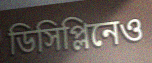
ডিসিপ্লিনেও